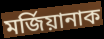
মৰ্জিয়ানাক